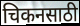
चिकनसाठी